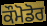
ਕੌਮੋਡੋਰ